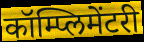
कॉम्प्लिमेंटरी